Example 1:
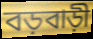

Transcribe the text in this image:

বড়বাড়ী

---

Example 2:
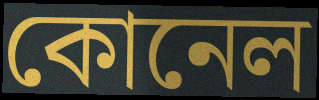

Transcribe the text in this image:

কোনেল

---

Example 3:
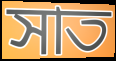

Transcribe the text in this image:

সাত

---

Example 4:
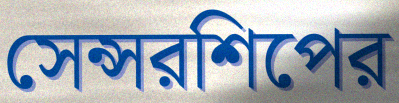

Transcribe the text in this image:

সেন্সরশিপের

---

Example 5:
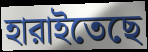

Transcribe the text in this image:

হারাইতেছে